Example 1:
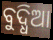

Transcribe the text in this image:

ବୁଦ୍ଧିଆ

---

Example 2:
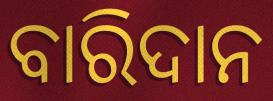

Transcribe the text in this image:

ବାରିଦାନ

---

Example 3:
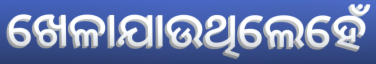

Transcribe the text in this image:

ଖେଳାଯାଉଥିଲେହେଁ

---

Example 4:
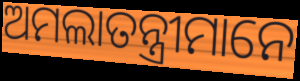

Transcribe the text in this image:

ଅମଲାତନ୍ତ୍ରୀମାନେ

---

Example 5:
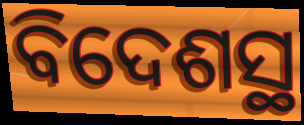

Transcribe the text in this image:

ବିଦେଶସ୍ଥ